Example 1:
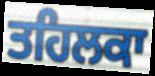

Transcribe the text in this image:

ਤਹਿਲਕਾ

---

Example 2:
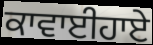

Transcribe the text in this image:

ਕਾਵਾਈਹਾਏ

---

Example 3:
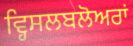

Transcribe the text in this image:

ਵ੍ਹਿਸਲਬਲੋਅਰਾਂ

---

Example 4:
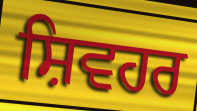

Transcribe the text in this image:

ਸ਼ਿਵਹਰ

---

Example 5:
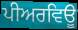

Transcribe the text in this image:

ਪੀਅਰਵਿਊ